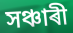
সঞ্চাৰী